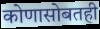
कोणासोबतही